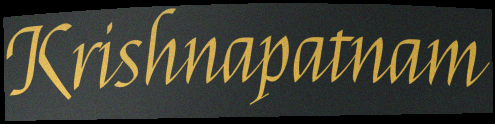
Krishnapatnam